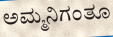
ಅಮ್ಮನಿಗಂತೂ